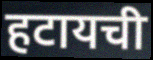
हटायची